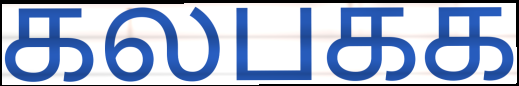
கலபகக